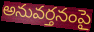
అనువర్తనంపై